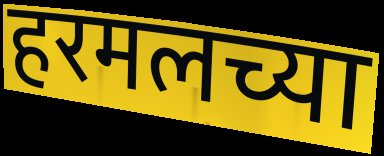
हरमलच्या